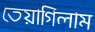
তেয়াগিলাম